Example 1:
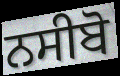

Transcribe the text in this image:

ਨਸੀਬੋ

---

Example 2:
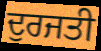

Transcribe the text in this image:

ਦੁਰਜਤੀ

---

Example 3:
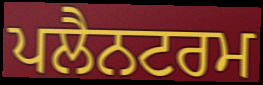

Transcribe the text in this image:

ਪਲੈਨਟਰਮ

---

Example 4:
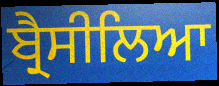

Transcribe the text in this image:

ਬ੍ਰੈਸੀਲਿਆ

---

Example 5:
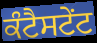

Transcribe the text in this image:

ਕੰਟੈਸਟੇਂਟ